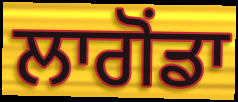
ਲਾਗੋਂਡਾ